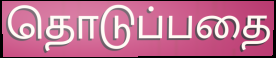
தொடுப்பதை